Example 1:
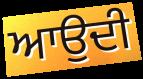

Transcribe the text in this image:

ਆਉਦੀ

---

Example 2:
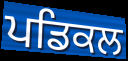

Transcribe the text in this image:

ਪਡਿਕਲ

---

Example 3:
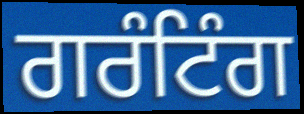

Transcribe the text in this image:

ਗਰੰਟਿੰਗ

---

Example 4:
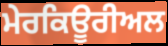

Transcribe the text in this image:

ਮੇਰਕਿਊਰੀਅਲ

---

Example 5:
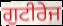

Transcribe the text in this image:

ਗੁਟੀਰੇਜ